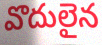
వొదులైన